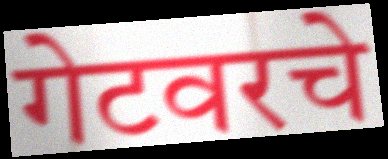
गेटवरचे